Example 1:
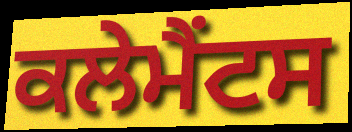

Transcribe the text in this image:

ਕਲੇਮੈਂਟਸ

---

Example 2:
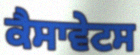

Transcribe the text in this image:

ਕੈਸਾਵੇਟਸ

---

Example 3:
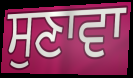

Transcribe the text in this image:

ਸੁਣਾਵਾ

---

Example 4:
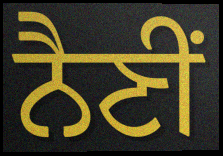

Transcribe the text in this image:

ਨੈਣੀਂ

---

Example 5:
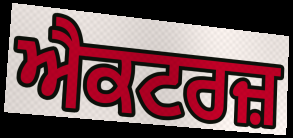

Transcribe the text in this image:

ਐਕਟਰਜ਼